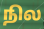
நில